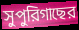
সুপুরিগাছের